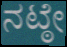
ನಟ್ಠೇ